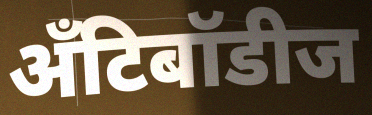
अँटिबॉडीज